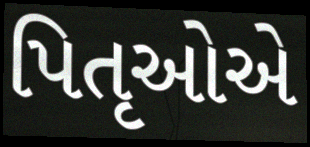
પિતૃઓએ